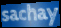
sachay